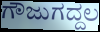
ಗೌಜುಗದ್ದಲ